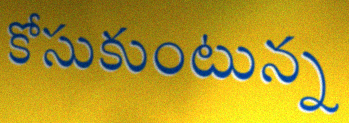
కోసుకుంటున్న